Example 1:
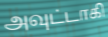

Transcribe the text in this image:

அவுட்டாகி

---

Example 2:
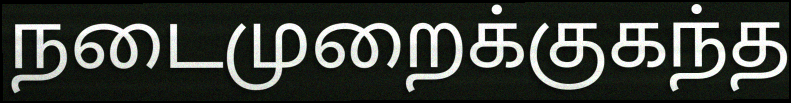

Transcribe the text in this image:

நடைமுறைக்குகந்த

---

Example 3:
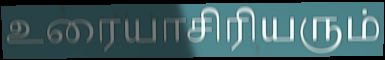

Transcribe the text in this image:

உரையாசிரியரும்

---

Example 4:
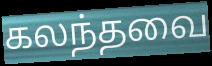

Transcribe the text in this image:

கலந்தவை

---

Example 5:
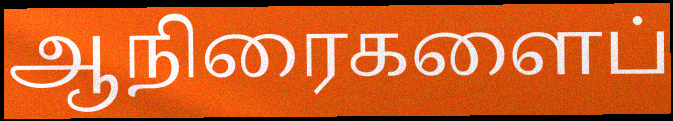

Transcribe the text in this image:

ஆநிரைகளைப்